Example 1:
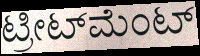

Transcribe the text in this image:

ಟ್ರೀಟ್‌ಮೆಂಟ್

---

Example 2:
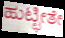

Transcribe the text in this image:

ಹುಟ್ಟೀತೇ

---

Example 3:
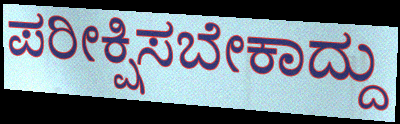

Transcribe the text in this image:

ಪರೀಕ್ಷಿಸಬೇಕಾದ್ದು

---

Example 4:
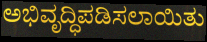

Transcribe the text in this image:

ಅಭಿವೃದ್ಧಿಪಡಿಸಲಾಯಿತು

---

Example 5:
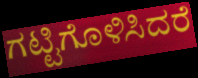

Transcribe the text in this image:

ಗಟ್ಟಿಗೊಳಿಸಿದರೆ